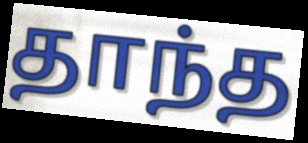
தாந்த